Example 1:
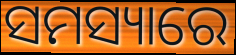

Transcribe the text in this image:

ସମସ୍ୟାରେ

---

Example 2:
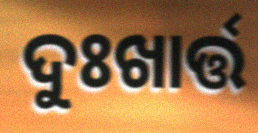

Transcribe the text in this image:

ଦୁଃଖାର୍ତ୍ତ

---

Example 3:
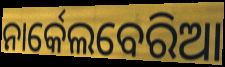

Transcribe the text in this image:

ନାର୍କେଲବେରିଆ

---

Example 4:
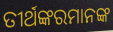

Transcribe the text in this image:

ତୀର୍ଥଙ୍କରମାନଙ୍କ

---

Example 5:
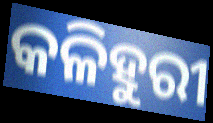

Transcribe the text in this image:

କଳିହୁରୀ